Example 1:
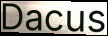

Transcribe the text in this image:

Dacus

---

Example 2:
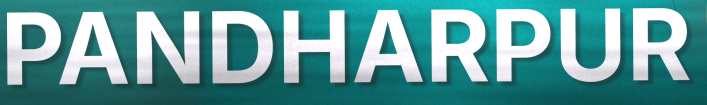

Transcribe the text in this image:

PANDHARPUR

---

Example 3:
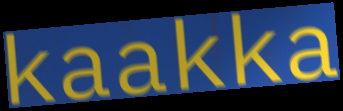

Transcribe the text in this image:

kaakka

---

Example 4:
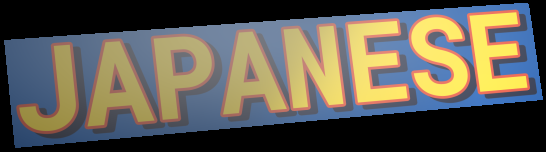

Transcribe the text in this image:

JAPANESE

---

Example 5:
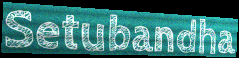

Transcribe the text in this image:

Setubandha